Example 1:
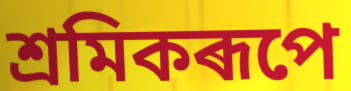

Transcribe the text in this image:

শ্ৰমিকৰূপে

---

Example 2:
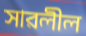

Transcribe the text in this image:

সাৱলীল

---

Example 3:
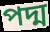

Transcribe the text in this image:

পদ্ম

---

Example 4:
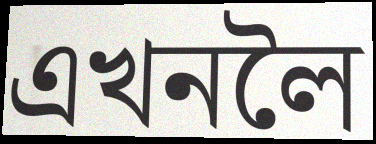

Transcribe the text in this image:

এখনলৈ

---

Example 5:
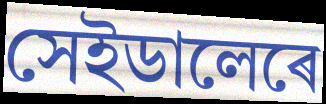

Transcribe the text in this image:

সেইডালেৰে